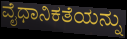
ವೈಧಾನಿಕತೆಯನ್ನು